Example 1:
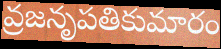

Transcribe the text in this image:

వ్రజనృపతికుమారం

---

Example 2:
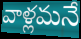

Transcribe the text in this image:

వాళ్లమనే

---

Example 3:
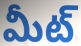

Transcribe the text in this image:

మీట్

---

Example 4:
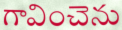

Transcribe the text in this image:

గావించెను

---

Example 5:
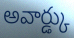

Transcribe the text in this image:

అవార్డ్కు